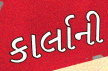
કાર્લાની